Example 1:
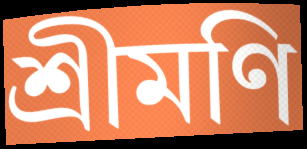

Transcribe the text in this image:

শ্রীমণি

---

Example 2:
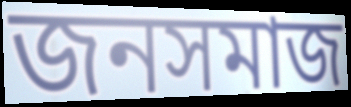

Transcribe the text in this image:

জনসমাজ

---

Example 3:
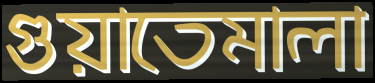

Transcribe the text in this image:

গুয়াতেমালা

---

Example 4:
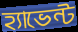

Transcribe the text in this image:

হ্যাভেন্ট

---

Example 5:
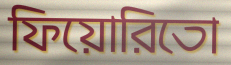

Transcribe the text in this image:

ফিয়োরিতো